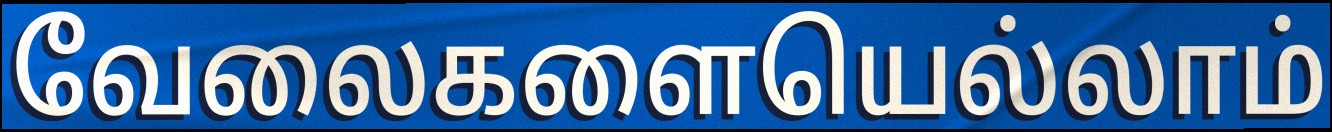
வேலைகளையெல்லாம்